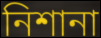
নিশানা